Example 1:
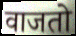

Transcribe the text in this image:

वाजतो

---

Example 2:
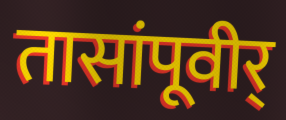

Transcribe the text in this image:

तासांपूवीर्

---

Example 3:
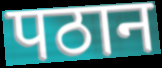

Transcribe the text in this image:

पठान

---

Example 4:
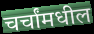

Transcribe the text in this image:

चर्चांमधील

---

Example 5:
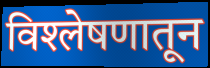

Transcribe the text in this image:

विश्लेषणातून